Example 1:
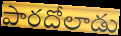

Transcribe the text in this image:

పారదోలాడు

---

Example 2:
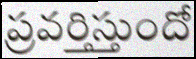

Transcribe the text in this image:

ప్రవర్తిస్తుందో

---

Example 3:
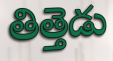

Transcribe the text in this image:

తిత్తెడు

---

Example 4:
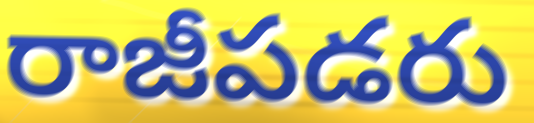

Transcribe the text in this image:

రాజీపడరు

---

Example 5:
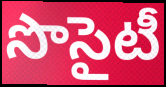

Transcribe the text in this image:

సొసైటీ